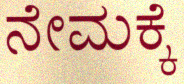
ನೇಮಕ್ಕೆ